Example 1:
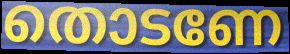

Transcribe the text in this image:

തൊടണേ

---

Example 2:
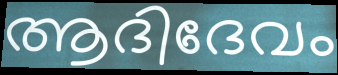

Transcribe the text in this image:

ആദിദേവം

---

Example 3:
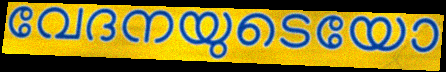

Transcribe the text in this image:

വേദനയുടെയോ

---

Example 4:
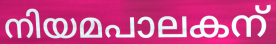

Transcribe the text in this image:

നിയമപാലകന്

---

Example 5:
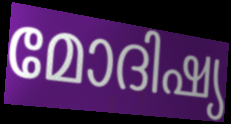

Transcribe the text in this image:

മോദിഷ്യ